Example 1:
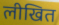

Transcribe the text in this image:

लीखित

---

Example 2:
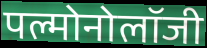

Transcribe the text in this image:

पल्मोनोलॉजी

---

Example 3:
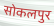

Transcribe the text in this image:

सोकलपुर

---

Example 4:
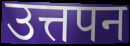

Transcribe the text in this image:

उत्तपन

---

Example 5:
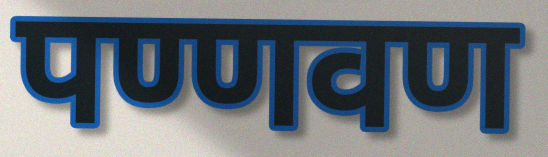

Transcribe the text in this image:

पण्णवण